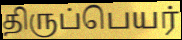
திருப்பெயர்